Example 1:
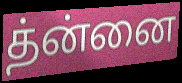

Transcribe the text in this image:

த்ன்னை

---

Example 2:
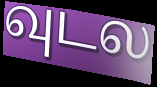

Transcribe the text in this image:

வுடல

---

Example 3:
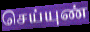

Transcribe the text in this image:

செய்யுண்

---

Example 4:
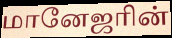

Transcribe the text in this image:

மானேஜரின்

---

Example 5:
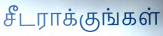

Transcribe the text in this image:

சீடராக்குங்கள்